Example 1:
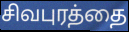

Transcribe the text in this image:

சிவபுரத்தை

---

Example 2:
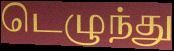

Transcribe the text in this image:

டெழுந்து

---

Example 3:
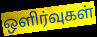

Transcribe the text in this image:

ஒளிர்வுகள்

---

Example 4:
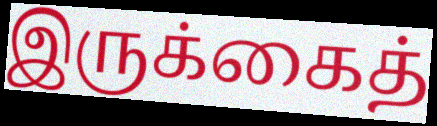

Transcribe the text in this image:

இருக்கைத்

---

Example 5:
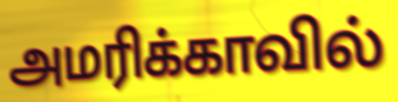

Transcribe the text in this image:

அமரிக்காவில்